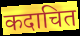
कदाचित